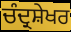
ਚੰਦ੍ਰਸ਼ੇਖਰ